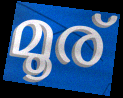
മൂര്